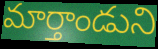
మార్తాండుని